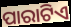
ପାରାଟିଏ